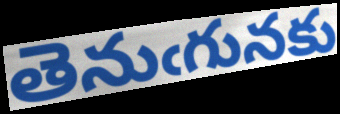
తెనుఁగునకు